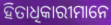
ହିତାଧିକାରୀମାନେ